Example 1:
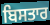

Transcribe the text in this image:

ਬਿਸਤਾਰ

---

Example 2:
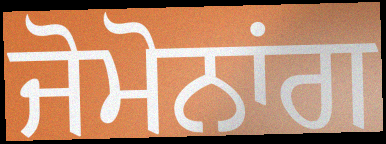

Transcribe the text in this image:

ਜੋਮੋਨਾਂਗ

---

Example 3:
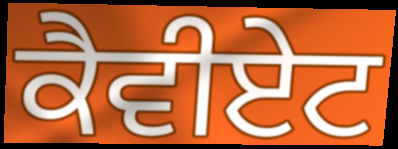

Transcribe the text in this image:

ਕੈਵੀਏਟ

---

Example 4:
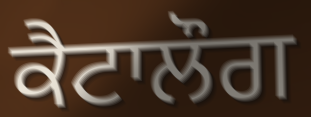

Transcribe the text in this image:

ਕੈਟਾਲੌਗ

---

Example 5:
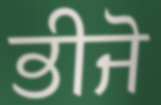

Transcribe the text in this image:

ਭੀਜੋ